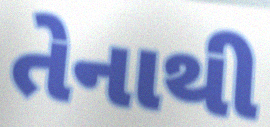
તેનાથી